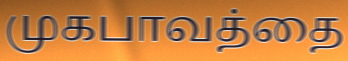
முகபாவத்தை